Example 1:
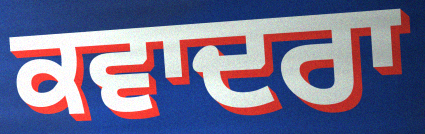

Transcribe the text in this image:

ਕਵਾਦਰਾ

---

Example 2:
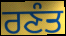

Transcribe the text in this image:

ਰਣੰਤ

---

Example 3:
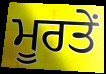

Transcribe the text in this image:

ਮੂਰਤੇਂ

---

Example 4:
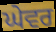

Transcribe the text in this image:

ਘੇਵਰ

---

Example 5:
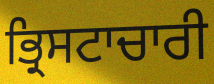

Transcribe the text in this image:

ਭ੍ਰਿਸਟਾਚਾਰੀ